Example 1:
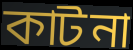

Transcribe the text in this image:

কাটনা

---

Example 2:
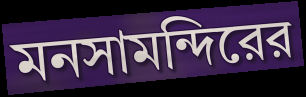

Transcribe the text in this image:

মনসামন্দিরের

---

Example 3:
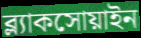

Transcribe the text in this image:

ব্ল্যাকসোয়াইন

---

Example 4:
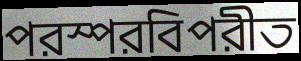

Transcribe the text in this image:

পরস্পরবিপরীত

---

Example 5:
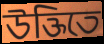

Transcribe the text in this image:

উক্তিতে